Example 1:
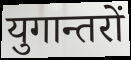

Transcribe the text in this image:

युगान्तरों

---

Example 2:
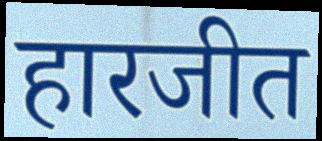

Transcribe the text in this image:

हारजीत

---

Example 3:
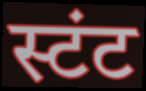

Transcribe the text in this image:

स्टंट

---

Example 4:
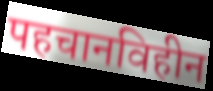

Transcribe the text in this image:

पहचानविहीन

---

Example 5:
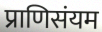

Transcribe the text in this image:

प्राणिसंयम